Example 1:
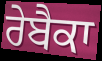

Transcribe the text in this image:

ਰੇਬੈਕਾ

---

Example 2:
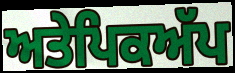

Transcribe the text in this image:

ਅਤੇਪਿਕਅੱਪ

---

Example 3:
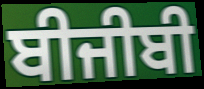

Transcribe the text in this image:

ਬੀਜੀਬੀ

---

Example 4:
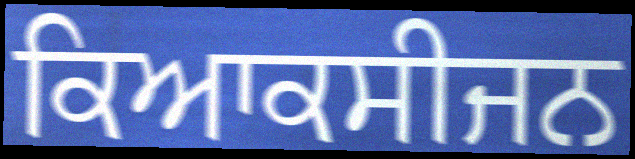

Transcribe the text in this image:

ਕਿਆਕਸੀਜਨ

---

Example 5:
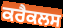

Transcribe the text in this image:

ਕਰੈਕਲਸ